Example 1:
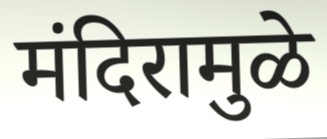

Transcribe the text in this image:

मंदिरामुळे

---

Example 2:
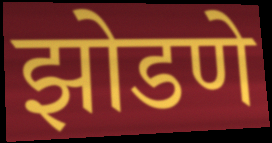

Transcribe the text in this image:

झोडणे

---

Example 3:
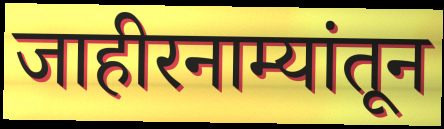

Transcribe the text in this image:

जाहीरनाम्यांतून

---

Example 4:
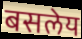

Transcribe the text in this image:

बसलेय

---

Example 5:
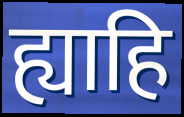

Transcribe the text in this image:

ह्याहि